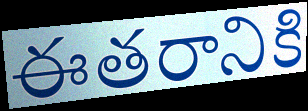
ఈతరానికి